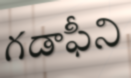
గడాఫీని